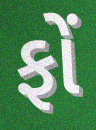
ફોં